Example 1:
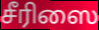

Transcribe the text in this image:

சீரிஸை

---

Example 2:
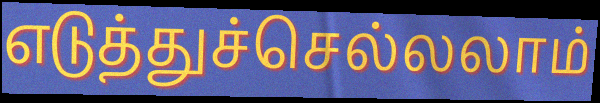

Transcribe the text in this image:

எடுத்துச்செல்லலாம்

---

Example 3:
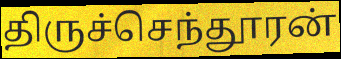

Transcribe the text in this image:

திருச்செந்தூரன்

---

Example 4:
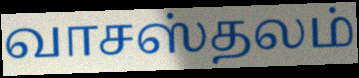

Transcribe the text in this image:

வாசஸ்தலம்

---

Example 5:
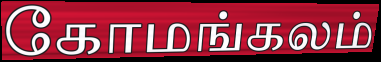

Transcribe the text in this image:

கோமங்கலம்